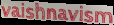
vaishnavism